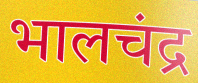
भालचंद्र